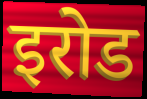
इरोड